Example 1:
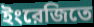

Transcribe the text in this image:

ইংরেজিতে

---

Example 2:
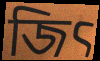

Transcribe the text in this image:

জিৎ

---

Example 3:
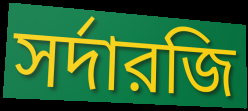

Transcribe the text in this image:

সর্দারজি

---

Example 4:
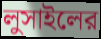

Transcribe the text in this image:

লুসাইলের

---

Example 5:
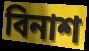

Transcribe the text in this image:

বিনাশ